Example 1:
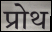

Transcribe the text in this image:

प्रोथ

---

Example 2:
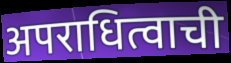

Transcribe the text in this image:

अपराधित्वाची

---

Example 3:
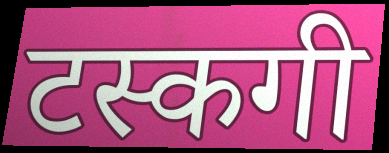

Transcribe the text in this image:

टस्कगी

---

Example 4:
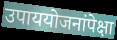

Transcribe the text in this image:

उपाययोजनांपेक्षा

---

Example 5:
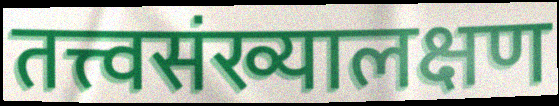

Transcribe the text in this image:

तत्त्वसंख्यालक्षण